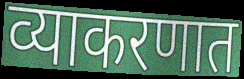
व्याकरणात